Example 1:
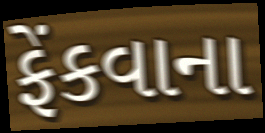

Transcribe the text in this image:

ફેંકવાના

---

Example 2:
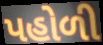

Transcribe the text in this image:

પહોળી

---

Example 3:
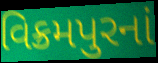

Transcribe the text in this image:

વિક્રમપુરનાં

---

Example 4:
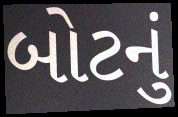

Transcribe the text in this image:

બોટનું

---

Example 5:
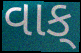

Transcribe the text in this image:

વાક્